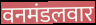
वनमंडलवार